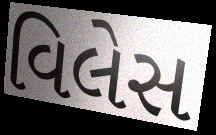
વિલેસ